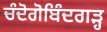
ਚੰਦੋਗੋਬਿੰਦਗੜ੍ਹ